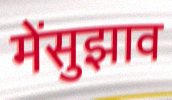
मेंसुझाव